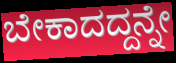
ಬೇಕಾದದ್ದನ್ನೇ